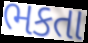
ભકતા